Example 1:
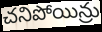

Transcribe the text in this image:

చనిపోయిన్రు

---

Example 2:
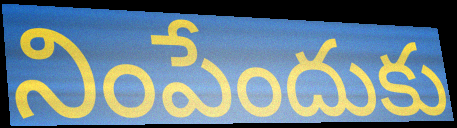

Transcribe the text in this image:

నింపేందుకు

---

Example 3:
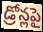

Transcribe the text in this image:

డ్రోన్లపై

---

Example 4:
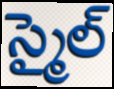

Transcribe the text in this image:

స్మైల్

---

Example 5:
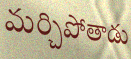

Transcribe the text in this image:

మర్చిపోతాడు